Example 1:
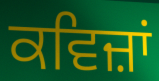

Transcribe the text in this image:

ਕਵਿਜ਼ਾਂ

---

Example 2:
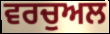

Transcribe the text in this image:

ਵਰਚੁਅਲ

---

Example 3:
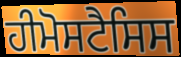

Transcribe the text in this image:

ਹੀਮੋਸਟੈਸਿਸ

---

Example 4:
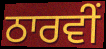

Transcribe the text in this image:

ਠਾਰਵੀਂ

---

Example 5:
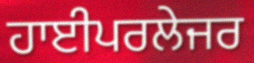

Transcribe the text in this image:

ਹਾਈਪਰਲੇਜਰ